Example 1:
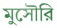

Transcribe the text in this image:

মুসৌরি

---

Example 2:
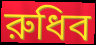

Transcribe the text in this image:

রুধিব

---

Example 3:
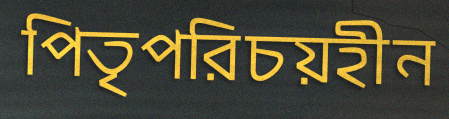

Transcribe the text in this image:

পিতৃপরিচয়হীন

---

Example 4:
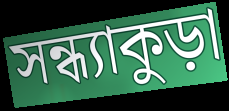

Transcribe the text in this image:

সন্ধ্যাকুড়া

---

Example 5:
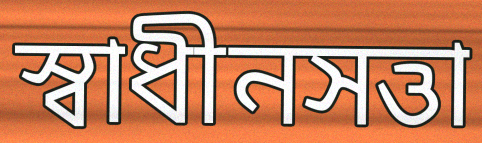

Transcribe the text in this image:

স্বাধীনসত্তা